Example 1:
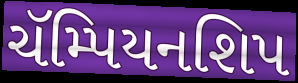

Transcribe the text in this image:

ચૅમ્પિયનશિપ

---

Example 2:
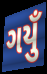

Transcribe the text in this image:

ગયુઁ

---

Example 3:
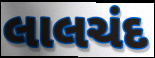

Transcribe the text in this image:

લાલચંદ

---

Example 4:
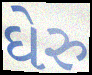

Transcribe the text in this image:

ઘેરુ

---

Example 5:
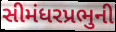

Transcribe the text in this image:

સીમંધરપ્રભુની